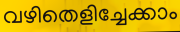
വഴിതെളിച്ചേക്കാം